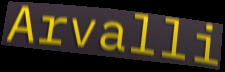
Arvalli